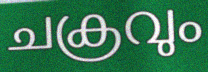
ചക്രവും